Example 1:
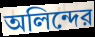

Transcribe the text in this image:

অলিন্দের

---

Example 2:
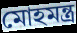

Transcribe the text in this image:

মোহমন্ত্র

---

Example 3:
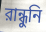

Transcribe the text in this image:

রান্ধুনি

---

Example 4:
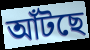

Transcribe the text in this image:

আঁটছে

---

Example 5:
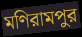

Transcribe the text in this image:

মণিরামপুর